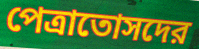
পেত্রাতোসদের